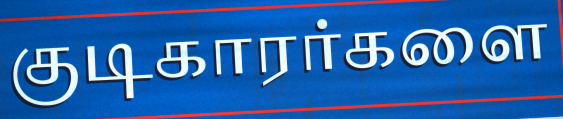
குடிகாரர்களை